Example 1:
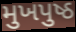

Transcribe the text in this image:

મુખપુષ્ઠ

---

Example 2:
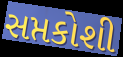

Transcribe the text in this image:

સપ્તકોશી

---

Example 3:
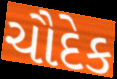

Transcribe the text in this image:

ચૌદેક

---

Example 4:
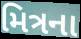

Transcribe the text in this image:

મિત્રના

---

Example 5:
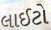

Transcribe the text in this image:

લાઈટો